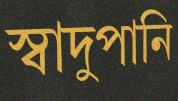
স্বাদুপানি